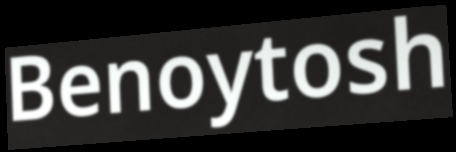
Benoytosh